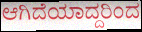
ಆಗಿದೆಯಾದ್ದರಿಂದ